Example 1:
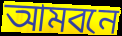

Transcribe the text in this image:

আমবনে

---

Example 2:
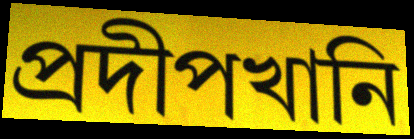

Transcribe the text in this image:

প্রদীপখানি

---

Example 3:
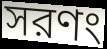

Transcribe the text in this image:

সরণং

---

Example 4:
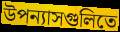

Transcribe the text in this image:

উপন্যাসগুলিতে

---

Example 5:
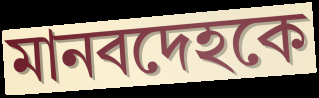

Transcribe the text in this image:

মানবদেহকে